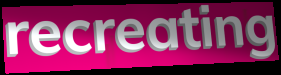
recreating